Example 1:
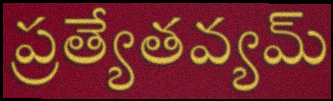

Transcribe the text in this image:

ప్రత్యేతవ్యమ్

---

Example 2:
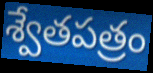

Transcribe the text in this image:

శ్వేతపత్రం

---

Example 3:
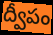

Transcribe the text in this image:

ద్వీపం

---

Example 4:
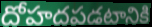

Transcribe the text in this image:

దోహదపడటానికి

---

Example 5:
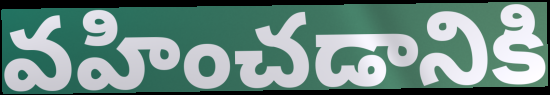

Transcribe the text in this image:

వహించడానికి